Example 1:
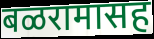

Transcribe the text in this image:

बळरामासह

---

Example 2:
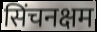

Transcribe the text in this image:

सिंचनक्षम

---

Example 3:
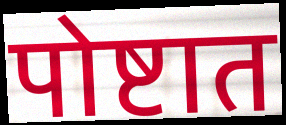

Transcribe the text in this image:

पोष्टात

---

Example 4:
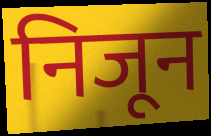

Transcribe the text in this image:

निजून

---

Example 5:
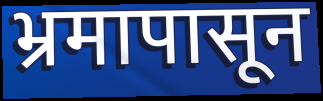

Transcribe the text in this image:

भ्रमापासून